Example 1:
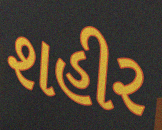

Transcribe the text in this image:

શહીર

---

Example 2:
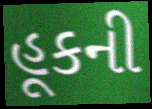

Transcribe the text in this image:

હૂકની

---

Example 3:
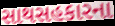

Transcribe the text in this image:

સાથસહકારના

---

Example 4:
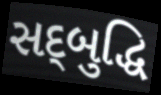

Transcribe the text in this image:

સદ્‌બુદ્ધિ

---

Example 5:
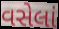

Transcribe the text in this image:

વસેલાં